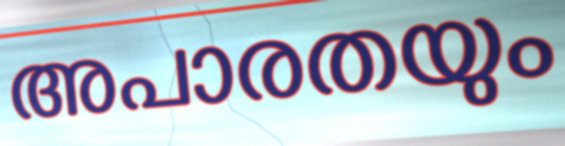
അപാരതയും